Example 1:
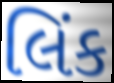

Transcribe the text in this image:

લિંક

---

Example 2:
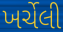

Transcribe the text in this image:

ખર્ચેલી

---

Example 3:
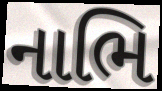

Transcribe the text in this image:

નાભિ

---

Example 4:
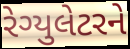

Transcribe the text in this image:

રેગ્યુલેટરને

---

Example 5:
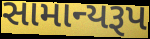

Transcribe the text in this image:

સામાન્યરૂપ